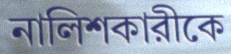
নালিশকারীকে